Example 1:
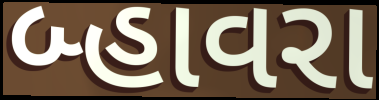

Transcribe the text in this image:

બ્હાવરા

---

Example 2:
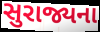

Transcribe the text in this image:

સુરાજ્યના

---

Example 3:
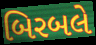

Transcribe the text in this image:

બિરબલે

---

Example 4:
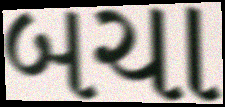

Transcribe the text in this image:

બચા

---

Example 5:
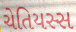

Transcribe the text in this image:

ચેતિયસ્સ